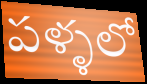
పళ్ళలో